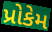
પ્રોકેમ